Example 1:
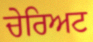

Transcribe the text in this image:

ਚੇਰਿਅਟ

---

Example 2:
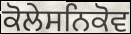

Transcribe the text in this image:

ਕੋਲੇਸਨਿਕੋਵ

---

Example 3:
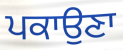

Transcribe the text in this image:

ਪਕਾਉਣਾ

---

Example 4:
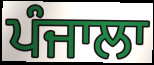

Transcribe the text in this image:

ਪੰਜਾਲਾ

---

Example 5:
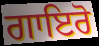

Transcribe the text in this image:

ਗਾਇਰੋ